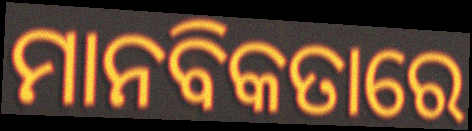
ମାନବିକତାରେ